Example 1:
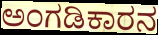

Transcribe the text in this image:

ಅಂಗಡಿಕಾರನ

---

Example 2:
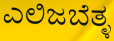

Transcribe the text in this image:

ಎಲಿಜಬೆತ್ಳ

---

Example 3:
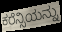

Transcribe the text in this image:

ಕರೆನ್ಸಿಯನ್ನು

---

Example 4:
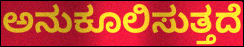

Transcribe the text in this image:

ಅನುಕೂಲಿಸುತ್ತದೆ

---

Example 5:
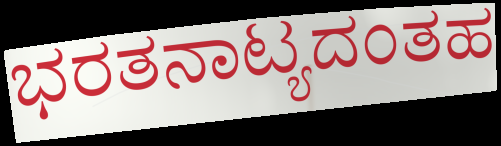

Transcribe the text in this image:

ಭರತನಾಟ್ಯದಂತಹ